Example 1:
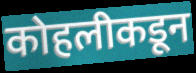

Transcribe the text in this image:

कोहलीकडून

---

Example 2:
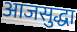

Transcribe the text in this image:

आजसुद्धा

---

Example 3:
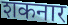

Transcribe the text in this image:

शकनार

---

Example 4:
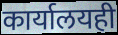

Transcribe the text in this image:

कार्यालयही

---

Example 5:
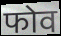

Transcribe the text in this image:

फोव